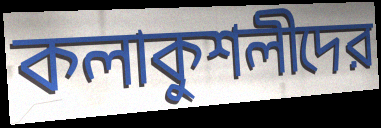
কলাকুশলীদের